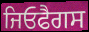
ਜਿਓਫੈਗਸ